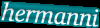
hermanni